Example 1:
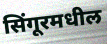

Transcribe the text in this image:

सिंगूरमधील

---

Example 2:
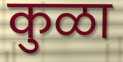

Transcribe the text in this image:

कुळा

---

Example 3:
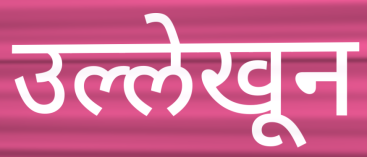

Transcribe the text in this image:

उल्लेखून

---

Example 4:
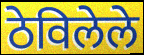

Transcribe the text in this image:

ठेविलेले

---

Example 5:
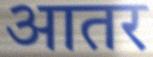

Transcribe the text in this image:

आतर